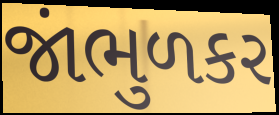
જાંભુળકર